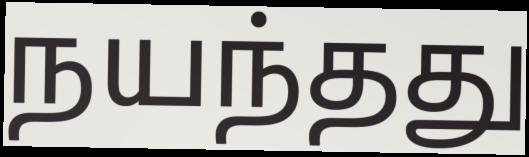
நயந்தது